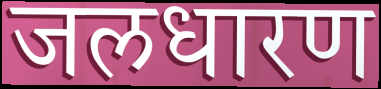
जलधारण